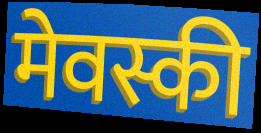
मेवस्की